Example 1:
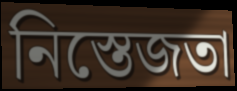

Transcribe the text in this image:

নিস্তেজতা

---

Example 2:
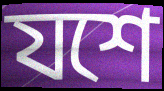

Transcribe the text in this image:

যশে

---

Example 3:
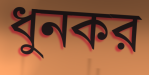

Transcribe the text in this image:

ধুনকর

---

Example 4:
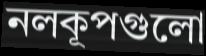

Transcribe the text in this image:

নলকূপগুলো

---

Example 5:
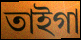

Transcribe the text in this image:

তাইগা